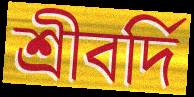
শ্রীবর্দি